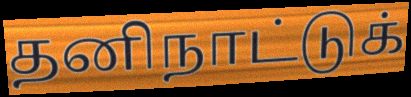
தனிநாட்டுக்